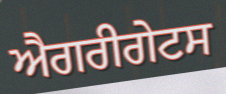
ਐਗਰੀਗੇਟਸ